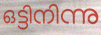
ഒട്ടിനിന്നു